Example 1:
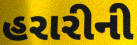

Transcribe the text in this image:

હરારીની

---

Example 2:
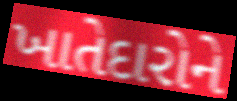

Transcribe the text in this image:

ખાતેદારોને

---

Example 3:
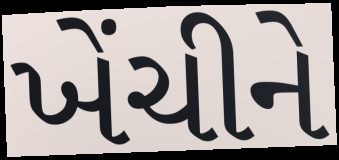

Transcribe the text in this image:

ખેંચીને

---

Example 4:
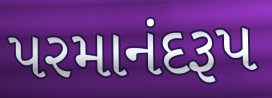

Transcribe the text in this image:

પરમાનંદરૂપ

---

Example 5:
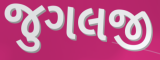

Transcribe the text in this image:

જુગલજી